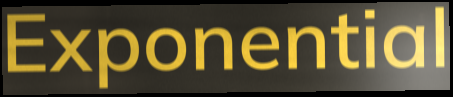
Exponential